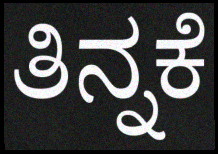
ತಿನ್ನಕೆ